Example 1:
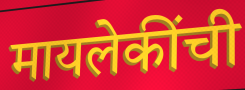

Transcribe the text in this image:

मायलेकींची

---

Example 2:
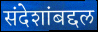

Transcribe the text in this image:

संदेशांबद्दल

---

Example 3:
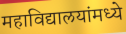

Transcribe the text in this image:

महाविद्यालयांमध्ये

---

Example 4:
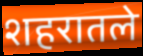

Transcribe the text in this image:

शहरातले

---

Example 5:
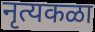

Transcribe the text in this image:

नृत्यकळा